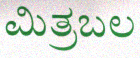
ಮಿತ್ರಬಲ